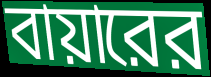
বায়ারের